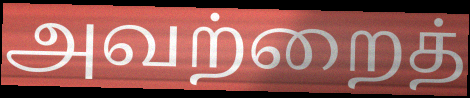
அவற்றைத்